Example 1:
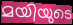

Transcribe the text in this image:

മയിയുടെ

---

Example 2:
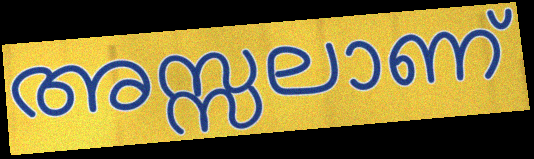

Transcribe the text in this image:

അസ്സലാണ്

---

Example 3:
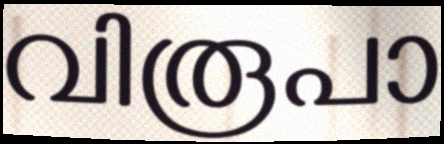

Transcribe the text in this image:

വിരൂപാ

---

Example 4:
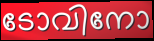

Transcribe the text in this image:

ടോവിനോ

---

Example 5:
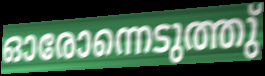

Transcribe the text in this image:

ഓരോന്നെടുത്തു്